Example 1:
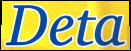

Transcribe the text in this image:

Deta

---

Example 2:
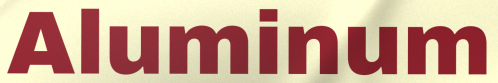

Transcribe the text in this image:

Aluminum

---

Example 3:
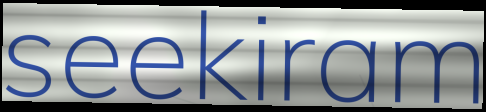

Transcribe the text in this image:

seekiram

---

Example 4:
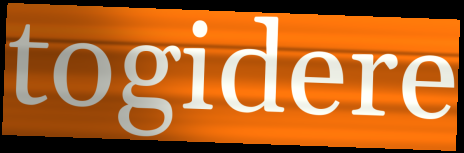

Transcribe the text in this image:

togidere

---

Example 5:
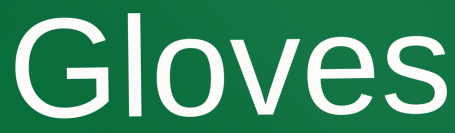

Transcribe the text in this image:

Gloves